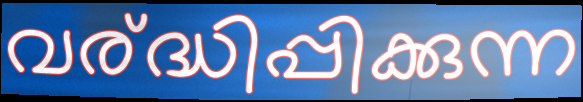
വര്ദ്ധിപ്പിക്കുന്ന